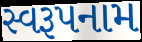
સ્વરૂપનામ